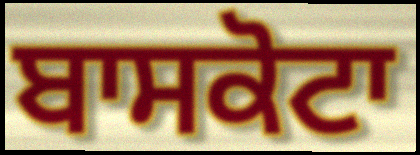
ਬਾਸਕੋਟਾ